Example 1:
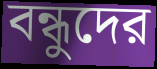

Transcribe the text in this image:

বন্ধুদের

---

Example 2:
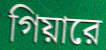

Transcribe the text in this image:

গিয়ারে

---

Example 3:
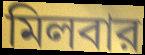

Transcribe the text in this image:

মিলবার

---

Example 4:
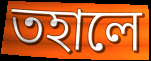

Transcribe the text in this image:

তহালে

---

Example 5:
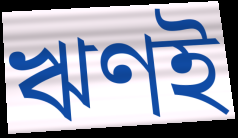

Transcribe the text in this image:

ঋণই